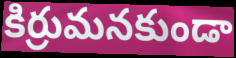
కిర్రుమనకుండా